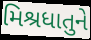
મિશ્રધાતુને